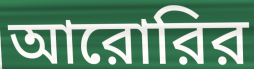
আরোরির